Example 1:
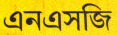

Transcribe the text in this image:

এনএসজি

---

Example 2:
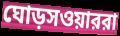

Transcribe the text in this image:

ঘোড়সওয়াররা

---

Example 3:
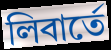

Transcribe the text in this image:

লিবার্তে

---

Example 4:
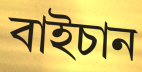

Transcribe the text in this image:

বাইচান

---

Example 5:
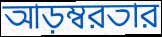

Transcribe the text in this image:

আড়ম্বরতার